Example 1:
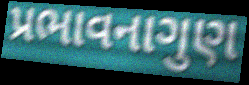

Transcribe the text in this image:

પ્રભાવનાગુણ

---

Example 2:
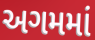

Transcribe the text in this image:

અગમમાં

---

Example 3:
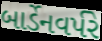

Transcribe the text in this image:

બાર્ડેનવર્પરે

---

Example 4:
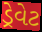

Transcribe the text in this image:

ડ્રેવેટ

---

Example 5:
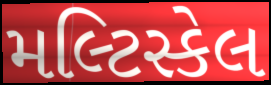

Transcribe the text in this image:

મલ્ટિસ્કેલ